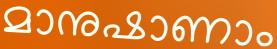
മാനുഷാണാം